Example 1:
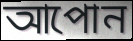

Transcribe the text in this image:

আপোন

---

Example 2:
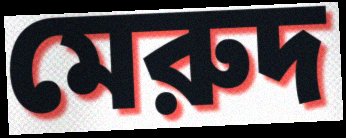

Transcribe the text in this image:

মেরুদ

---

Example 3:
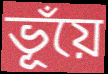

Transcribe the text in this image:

ভূঁয়ে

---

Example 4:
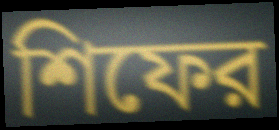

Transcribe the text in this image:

শিফের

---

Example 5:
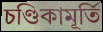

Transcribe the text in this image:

চণ্ডিকামূর্তি